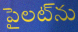
పైలట్‌ను